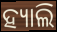
ହ୍ୟାଲି